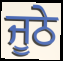
ਜੂਠੇ